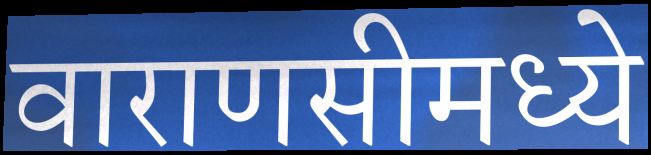
वाराणसीमध्ये